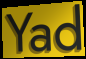
Yad